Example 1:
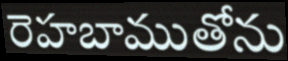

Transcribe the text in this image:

రెహబాముతోను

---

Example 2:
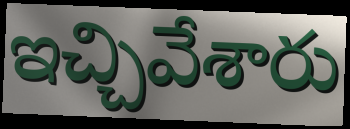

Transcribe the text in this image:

ఇచ్చివేశారు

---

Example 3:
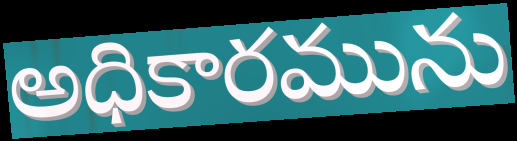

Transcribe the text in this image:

అధికారమును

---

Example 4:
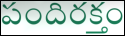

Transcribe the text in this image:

పందిరక్తం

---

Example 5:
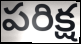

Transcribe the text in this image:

పరిక్ష